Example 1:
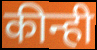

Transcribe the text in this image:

कीन्ही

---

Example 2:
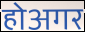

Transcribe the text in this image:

होअगर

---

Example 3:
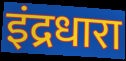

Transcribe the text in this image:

इंद्रधारा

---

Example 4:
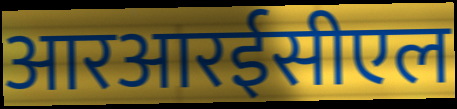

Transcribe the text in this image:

आरआरईसीएल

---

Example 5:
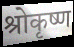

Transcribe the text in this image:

श्रोकृष्ण